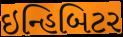
ઇન્હિબિટર